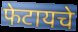
फेटायचे